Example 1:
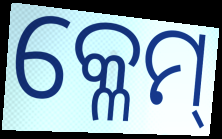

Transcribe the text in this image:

କ୍ଳେମ୍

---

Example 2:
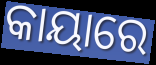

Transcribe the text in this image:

କାୟାରେ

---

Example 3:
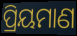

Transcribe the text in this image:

ପ୍ରିୟମାଣ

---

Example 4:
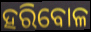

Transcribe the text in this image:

ହରିବୋଳ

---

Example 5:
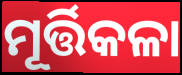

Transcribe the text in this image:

ମୂର୍ତ୍ତିକଳା